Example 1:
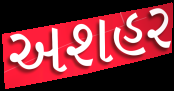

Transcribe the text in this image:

અશહર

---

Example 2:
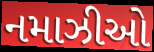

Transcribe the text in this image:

નમાઝીઓ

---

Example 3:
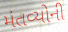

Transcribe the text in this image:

મંતવ્યોની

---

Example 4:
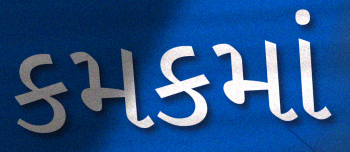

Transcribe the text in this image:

કમકમાં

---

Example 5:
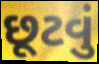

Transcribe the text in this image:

છૂટવું